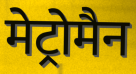
मेट्रोमैन